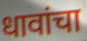
धावांचा